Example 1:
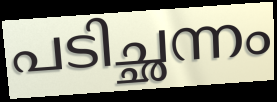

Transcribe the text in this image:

പടിച്ഛന്നം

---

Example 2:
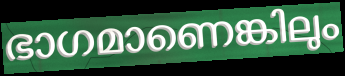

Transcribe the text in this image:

ഭാഗമാണെങ്കിലും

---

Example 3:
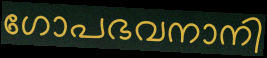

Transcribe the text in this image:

ഗോപഭവനാനി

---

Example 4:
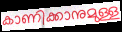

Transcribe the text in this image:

കാണിക്കാനുമുള്ള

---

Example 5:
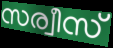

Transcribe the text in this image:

സര്വീസ്